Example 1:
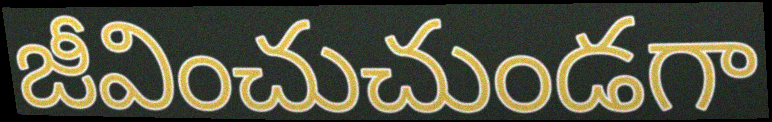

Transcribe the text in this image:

జీవించుచుండగా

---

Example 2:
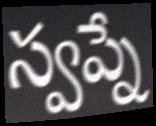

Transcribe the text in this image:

స్వప్నే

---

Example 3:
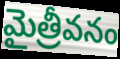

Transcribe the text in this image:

మైత్రీవనం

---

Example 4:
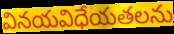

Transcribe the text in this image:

వినయవిధేయతలను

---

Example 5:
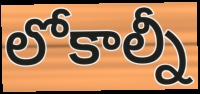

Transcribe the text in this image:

లోకాల్నీ